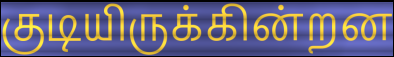
குடியிருக்கின்றன